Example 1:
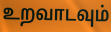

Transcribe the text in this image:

உறவாடவும்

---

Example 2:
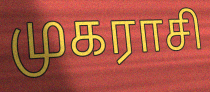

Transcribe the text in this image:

முகராசி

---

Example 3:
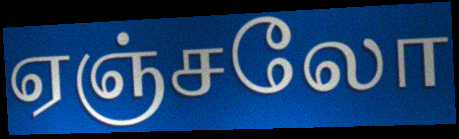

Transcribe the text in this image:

ஏஞ்சலோ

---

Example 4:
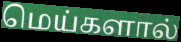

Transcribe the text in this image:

மெய்களால்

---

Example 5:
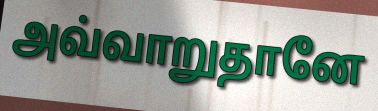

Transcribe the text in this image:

அவ்வாறுதானே